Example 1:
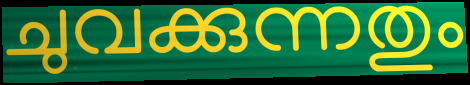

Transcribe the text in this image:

ചുവക്കുന്നതും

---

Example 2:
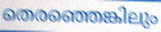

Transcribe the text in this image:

തെരഞ്ഞെങ്കിലും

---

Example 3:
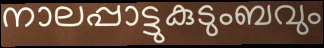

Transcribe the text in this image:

നാലപ്പാട്ടുകുടുംബവും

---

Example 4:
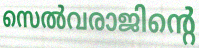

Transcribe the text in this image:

സെൽവരാജിന്റെ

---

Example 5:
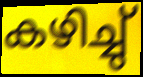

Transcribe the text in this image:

കഴിച്ചു്